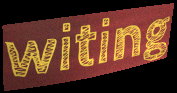
witing